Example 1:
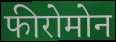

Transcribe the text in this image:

फीरोमोन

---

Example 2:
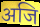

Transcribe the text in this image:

अजि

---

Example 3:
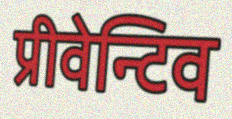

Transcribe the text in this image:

प्रीवेन्टिव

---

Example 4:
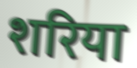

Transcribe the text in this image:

शरिया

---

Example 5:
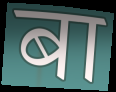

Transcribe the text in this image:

बा